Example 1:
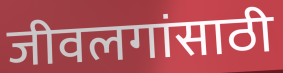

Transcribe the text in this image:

जीवलगांसाठी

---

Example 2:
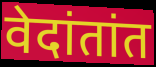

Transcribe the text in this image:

वेदांतांत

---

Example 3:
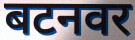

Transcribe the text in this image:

बटनवर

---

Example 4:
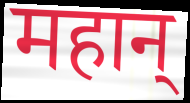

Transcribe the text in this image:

महान्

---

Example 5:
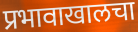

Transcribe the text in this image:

प्रभावाखालचा